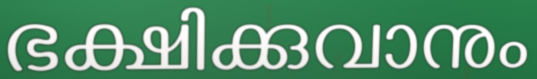
ഭക്ഷിക്കുവാനും